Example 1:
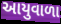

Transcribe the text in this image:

આયુવાળા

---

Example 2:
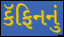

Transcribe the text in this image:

કૅફિનનું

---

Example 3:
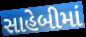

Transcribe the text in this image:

સાહેબીમાં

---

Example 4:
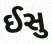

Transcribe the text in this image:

ઈસુ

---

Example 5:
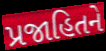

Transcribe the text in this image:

પ્રજાહિતને